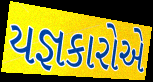
યજ્ઞકારોએ